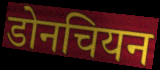
डोनचियन